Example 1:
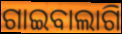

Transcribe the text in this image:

ଗାଇବାଲାଗି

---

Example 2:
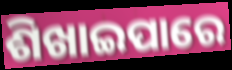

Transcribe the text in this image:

ଶିଖାଇପାରେ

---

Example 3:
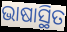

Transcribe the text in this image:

ଭାଷାସ୍ଥିତ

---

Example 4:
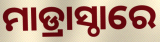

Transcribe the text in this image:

ମାଡ୍ରାସ୍ଠାରେ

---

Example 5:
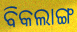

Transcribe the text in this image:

ବିକଲାଙ୍ଗ